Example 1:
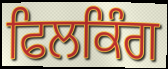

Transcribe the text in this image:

ਫਿਲਕਿੰਗ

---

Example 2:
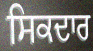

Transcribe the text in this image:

ਸਿਕਦਾਰ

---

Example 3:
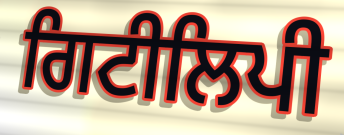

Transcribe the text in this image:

ਗਿਟੀਲਿਪੀ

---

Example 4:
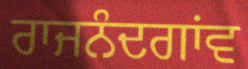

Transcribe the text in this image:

ਰਾਜਨੰਦਗਾਂਵ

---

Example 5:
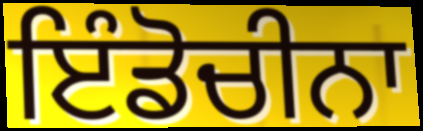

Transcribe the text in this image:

ਇੰਡੋਚੀਨਾ